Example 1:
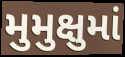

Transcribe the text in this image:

મુમુક્ષુમાં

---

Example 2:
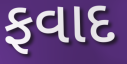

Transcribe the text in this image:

ફવાદ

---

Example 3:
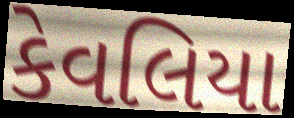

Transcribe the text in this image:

કેવલિયા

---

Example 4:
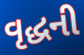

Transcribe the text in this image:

વૃદ્ધની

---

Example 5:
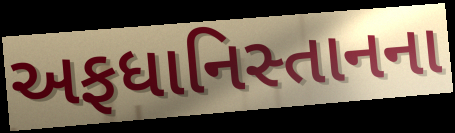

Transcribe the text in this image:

અફધાનિસ્તાનના